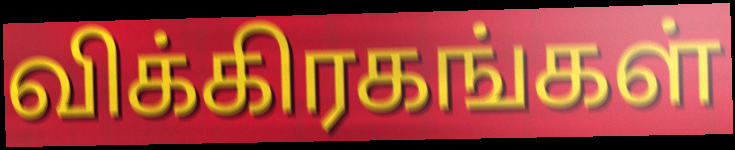
விக்கிரகங்கள்